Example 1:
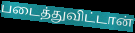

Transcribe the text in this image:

படைத்துவிட்டான்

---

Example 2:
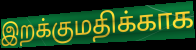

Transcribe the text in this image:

இறக்குமதிக்காக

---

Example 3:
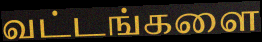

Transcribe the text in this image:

வட்டங்களை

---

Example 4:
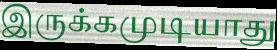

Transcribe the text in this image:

இருக்கமுடியாது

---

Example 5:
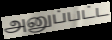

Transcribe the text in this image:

அனுப்பட்ட